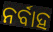
ନର୍ବାହ